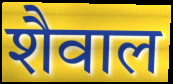
शैवाल